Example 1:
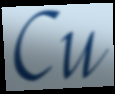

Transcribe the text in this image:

Cu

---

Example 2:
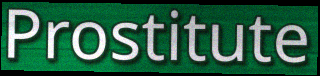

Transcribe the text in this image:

Prostitute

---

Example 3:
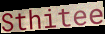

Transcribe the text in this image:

Sthitee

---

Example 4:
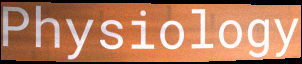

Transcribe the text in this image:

Physiology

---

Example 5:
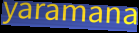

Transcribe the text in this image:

yaramana